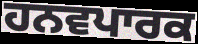
ਹਨਵਪਾਰਕ